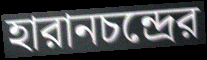
হারানচন্দ্রের